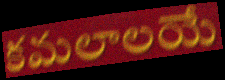
కమలాలయే